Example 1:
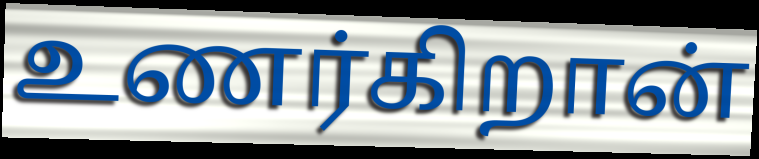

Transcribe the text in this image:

உணர்கிறான்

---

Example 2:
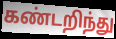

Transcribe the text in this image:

கண்டறிந்து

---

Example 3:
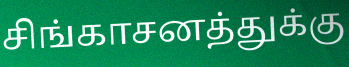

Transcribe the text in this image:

சிங்காசனத்துக்கு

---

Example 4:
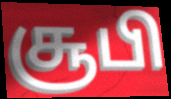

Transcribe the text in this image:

சூபி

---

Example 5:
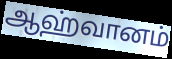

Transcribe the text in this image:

ஆஹ்வானம்